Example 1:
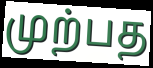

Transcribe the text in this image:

முற்பத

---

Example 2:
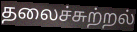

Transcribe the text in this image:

தலைச்சுற்றல்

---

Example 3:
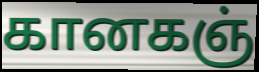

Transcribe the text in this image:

கானகஞ்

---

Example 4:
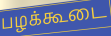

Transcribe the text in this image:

பழக்கூடை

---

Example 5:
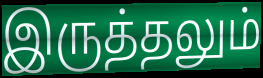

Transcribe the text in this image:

இருத்தலும்